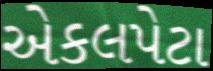
એકલપેટા